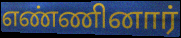
எண்ணினார்